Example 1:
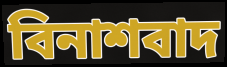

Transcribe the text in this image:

বিনাশবাদ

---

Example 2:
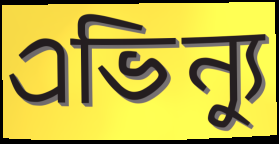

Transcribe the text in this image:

এভিন্যু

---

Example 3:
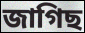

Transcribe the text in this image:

জাগিছ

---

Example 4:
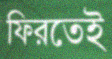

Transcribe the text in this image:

ফিরতেই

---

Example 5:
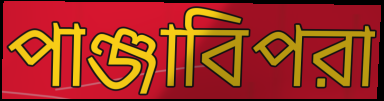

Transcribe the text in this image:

পাঞ্জাবিপরা